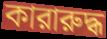
কারারুদ্ধ